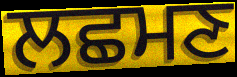
ਲਛਮਣ